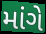
માંગે